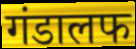
गंडालफ